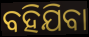
ବହିଯିବା